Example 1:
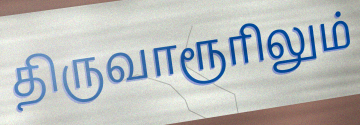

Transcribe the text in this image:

திருவாரூரிலும்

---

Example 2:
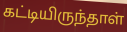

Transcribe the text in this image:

கட்டியிருந்தாள்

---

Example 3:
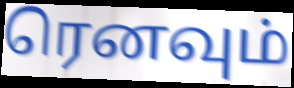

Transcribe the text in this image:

ரெனவும்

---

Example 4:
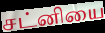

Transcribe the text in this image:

சட்னியை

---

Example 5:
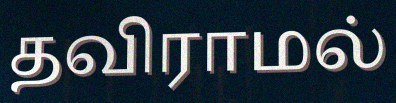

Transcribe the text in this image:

தவிராமல்